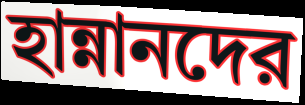
হান্নানদের